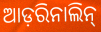
ଆଡ଼ରିନାଲିନ୍